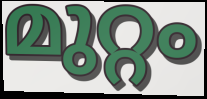
മുറ്റം